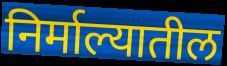
निर्माल्यातील